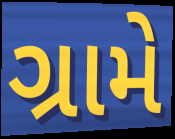
ગ્રામે